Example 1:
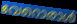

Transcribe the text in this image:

വേറൊരാൾ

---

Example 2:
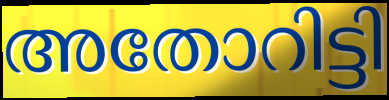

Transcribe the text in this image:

അതോറിട്ടി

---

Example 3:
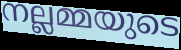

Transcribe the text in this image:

നല്ലമ്മയുടെ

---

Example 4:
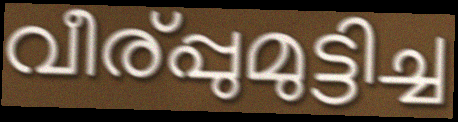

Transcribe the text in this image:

വീര്പ്പുമുട്ടിച്ച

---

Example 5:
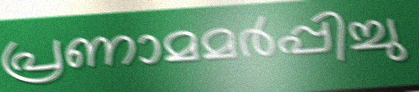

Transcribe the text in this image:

പ്രണാമമർപ്പിച്ചു